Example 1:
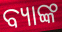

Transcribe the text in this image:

ବ୍ୟାଙ୍କ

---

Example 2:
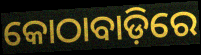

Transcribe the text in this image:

କୋଠାବାଡ଼ିରେ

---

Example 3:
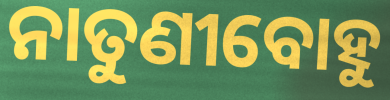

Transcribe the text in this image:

ନାତୁଣୀବୋହୁ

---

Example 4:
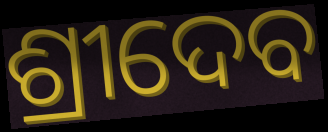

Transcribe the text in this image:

ଶ୍ରୀଦେବ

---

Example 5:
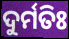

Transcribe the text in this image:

ଦୁର୍ମତିଃ